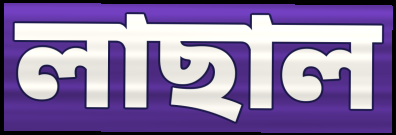
লাছাল